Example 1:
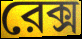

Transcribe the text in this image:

রেক্স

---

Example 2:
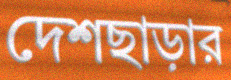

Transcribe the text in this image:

দেশছাড়ার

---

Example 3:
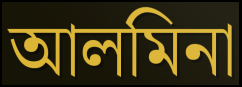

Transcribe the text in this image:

আলমিনা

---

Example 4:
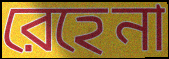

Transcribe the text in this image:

রেহেনা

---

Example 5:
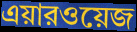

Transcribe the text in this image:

এয়ারওয়েজ